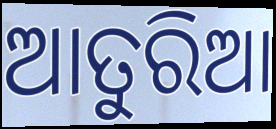
ଆତୁରିଆ